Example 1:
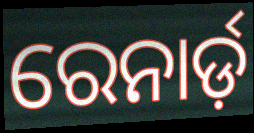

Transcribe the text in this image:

ରେନାର୍ଡ଼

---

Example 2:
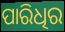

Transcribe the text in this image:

ପାରିଧିର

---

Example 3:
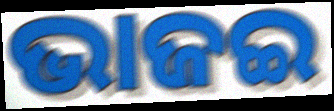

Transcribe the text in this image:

ଭାଜଇ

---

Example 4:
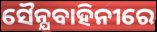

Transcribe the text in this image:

ସୈନ୍ଯବାହିନୀରେ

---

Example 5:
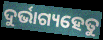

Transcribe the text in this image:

ଦୁର୍ଭାଗ୍ୟହେତୁ